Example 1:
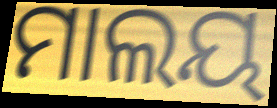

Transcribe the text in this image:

ମାଲୟ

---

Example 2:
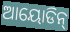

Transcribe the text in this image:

ଆୟୋଡିନ୍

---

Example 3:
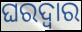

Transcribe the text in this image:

ଘରଦ୍ବାର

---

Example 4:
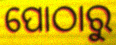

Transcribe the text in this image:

ପୋଠାରୁ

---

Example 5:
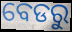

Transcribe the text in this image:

ବେଡରୁ